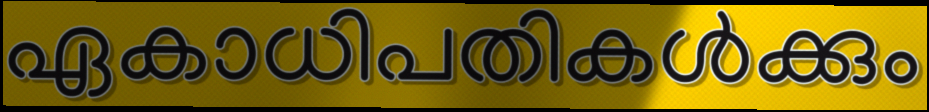
ഏകാധിപതികൾക്കും